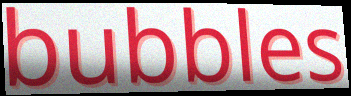
bubbles